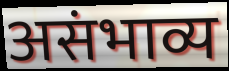
असंभाव्य